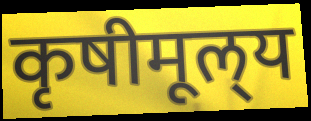
कृषीमूल्य